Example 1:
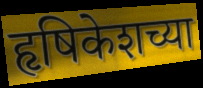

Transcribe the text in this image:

हृषिकेशच्या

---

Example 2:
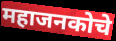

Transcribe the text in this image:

महाजनकोचे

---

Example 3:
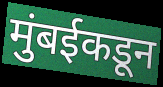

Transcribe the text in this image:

मुंबईकडून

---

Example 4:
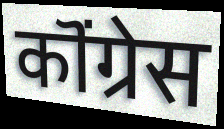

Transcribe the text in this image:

कॊंग्रेस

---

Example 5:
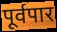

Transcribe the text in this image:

पूर्वपार